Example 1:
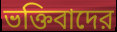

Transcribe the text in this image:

ভক্তিবাদের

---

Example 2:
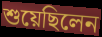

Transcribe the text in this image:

শুয়েছিলেন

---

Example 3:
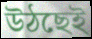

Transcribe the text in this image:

উঠছেই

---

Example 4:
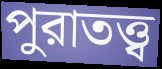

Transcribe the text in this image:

পুরাতত্ত্ব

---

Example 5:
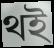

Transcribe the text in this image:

থই